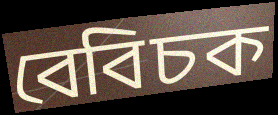
বেবিচক